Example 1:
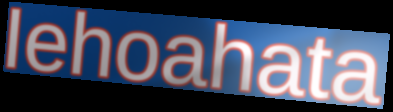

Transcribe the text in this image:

Iehoahata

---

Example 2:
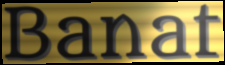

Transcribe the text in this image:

Banat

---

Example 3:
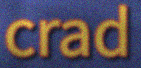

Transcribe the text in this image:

crad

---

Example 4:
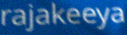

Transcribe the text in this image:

rajakeeya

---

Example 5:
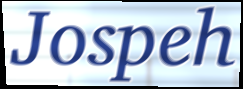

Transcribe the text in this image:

Jospeh